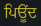
ਪਿਊਂਦ